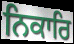
ਨਿਕਾਰਿ